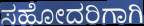
ಸಹೋದರಿಗಾಗಿ